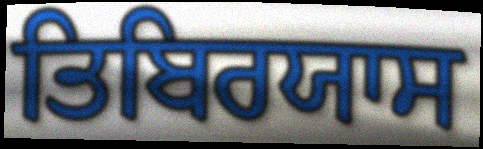
ਤਿਬਿਰਯਾਸ